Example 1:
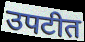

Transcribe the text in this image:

उपटीत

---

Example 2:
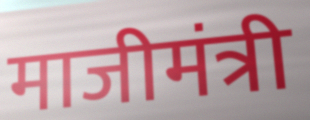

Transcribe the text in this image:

माजीमंत्री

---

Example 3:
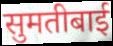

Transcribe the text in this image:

सुमतीबाई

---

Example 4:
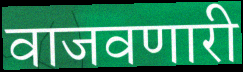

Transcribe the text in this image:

वाजवणारी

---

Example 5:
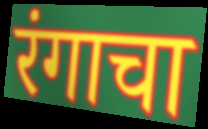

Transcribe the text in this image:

रंगाचा